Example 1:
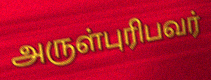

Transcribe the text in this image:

அருள்புரிபவர்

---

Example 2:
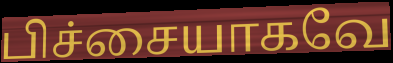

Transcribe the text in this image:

பிச்சையாகவே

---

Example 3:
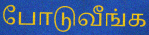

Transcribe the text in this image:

போடுவீங்க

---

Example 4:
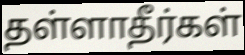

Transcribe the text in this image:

தள்ளாதீர்கள்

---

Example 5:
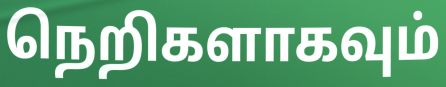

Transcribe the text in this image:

நெறிகளாகவும்